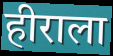
हीराला